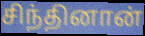
சிந்தினான்